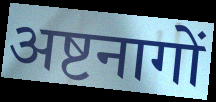
अष्टनागों